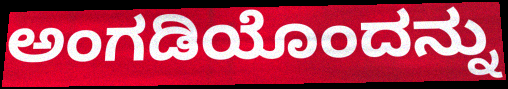
ಅಂಗಡಿಯೊಂದನ್ನು